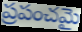
ప్రపంచమై